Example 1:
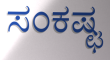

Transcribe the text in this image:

ಸಂಕಷ್ಟ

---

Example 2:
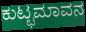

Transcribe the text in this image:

ಕುಟ್ಟಮಾವನ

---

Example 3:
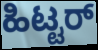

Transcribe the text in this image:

ಹಿಟ್ಟರ್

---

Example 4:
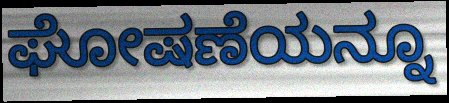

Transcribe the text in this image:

ಘೋಷಣೆಯನ್ನೂ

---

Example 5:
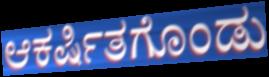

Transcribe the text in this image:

ಆಕರ್ಷಿತಗೊಂಡು